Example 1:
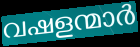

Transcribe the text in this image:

വഷളന്മാർ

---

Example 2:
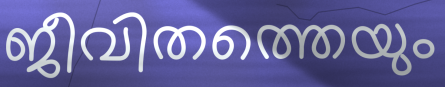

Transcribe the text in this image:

ജീവിതത്തെയും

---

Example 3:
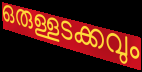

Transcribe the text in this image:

ഒരുള്ളടക്കവും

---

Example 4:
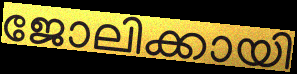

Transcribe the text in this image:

ജോലിക്കായി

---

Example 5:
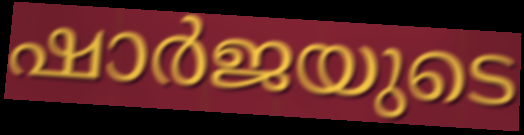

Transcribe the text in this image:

ഷാർജയുടെ